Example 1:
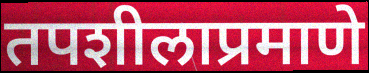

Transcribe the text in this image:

तपशीलाप्रमाणे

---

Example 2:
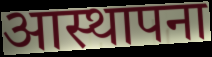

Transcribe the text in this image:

आस्थापना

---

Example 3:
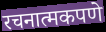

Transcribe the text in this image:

रचनात्मकपणे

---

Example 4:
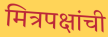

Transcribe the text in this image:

मित्रपक्षांची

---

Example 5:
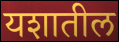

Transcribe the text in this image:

यशातील